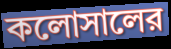
কলোসালের